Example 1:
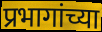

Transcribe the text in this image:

प्रभागांच्या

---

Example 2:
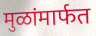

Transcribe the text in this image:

मुळांमार्फत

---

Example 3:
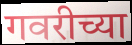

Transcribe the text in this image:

गवरीच्या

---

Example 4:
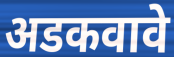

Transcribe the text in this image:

अडकवावे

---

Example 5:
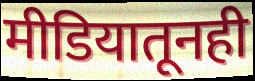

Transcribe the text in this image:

मीडियातूनही